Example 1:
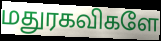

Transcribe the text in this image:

மதுரகவிகளே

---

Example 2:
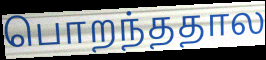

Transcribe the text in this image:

பொறந்ததால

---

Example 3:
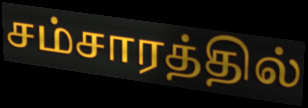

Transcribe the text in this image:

சம்சாரத்தில்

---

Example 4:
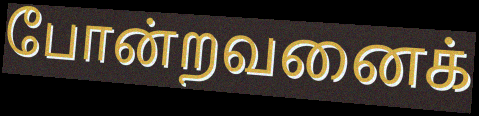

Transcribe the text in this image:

போன்றவனைக்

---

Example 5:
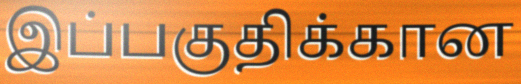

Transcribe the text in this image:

இப்பகுதிக்கான